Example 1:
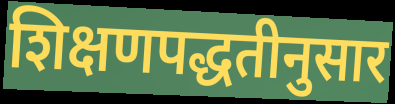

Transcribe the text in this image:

शिक्षणपद्धतीनुसार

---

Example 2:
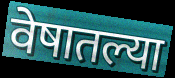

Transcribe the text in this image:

वेषातल्या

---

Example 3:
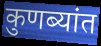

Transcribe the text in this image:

कुणब्यांत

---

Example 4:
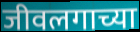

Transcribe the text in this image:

जीवलगाच्या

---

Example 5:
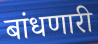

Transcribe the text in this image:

बांधणारी